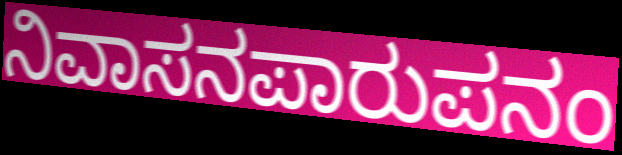
ನಿವಾಸನಪಾರುಪನಂ